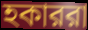
হকাররা